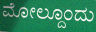
ಮೋಲ್ದೂಂದು